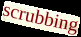
scrubbing